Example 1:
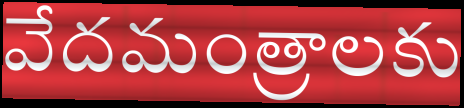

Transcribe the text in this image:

వేదమంత్రాలకు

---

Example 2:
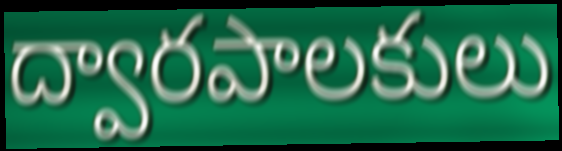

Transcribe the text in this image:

ద్వారపాలకులు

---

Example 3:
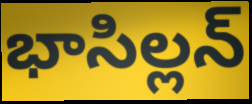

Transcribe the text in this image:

భాసిల్లన్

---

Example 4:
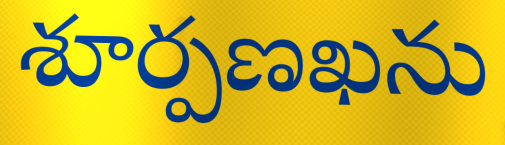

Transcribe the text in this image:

శూర్పణఖను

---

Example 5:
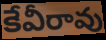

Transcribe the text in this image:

కేవీరావు